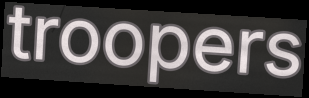
troopers